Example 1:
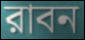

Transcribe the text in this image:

রাবন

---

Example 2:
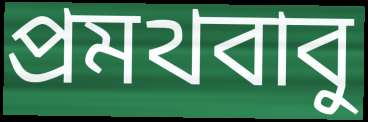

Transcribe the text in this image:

প্রমথবাবু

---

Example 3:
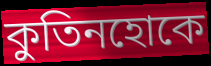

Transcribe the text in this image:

কুতিনহোকে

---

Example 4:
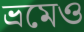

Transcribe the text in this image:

ভ্রমেও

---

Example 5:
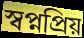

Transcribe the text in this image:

স্বপ্নপ্রিয়